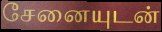
சேனையுடன்